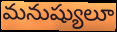
మనుష్యులూ